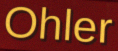
Ohler